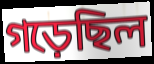
গড়েছিল